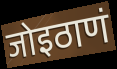
जोइठाणं